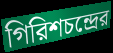
গিরিশচন্দ্রের